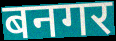
बनगर